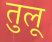
तुलू